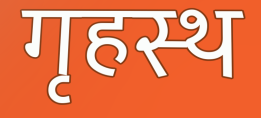
गृहस्थ